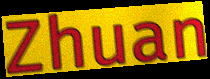
Zhuan